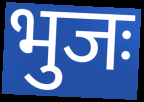
भुजः